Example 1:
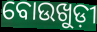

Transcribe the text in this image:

ବୋଉଖୁଡ଼ୀ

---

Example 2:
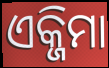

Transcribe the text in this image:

ଏକ୍ଜିମା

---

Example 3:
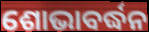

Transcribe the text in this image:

ଶୋଭାବର୍ଦ୍ଧନ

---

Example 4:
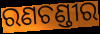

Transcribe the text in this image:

ରଣଚଣ୍ଡୀର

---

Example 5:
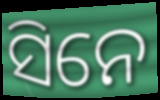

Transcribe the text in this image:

ସିନେ